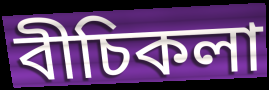
বীচিকলা